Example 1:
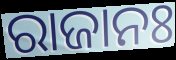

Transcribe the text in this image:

ରାଜାନଃ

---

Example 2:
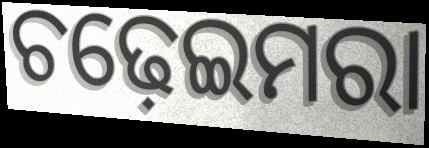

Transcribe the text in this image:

ଚଢ଼େଇମରା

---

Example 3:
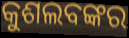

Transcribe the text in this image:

କୁଶଲବଙ୍କର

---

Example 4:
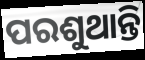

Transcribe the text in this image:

ପରଶୁଥାନ୍ତି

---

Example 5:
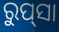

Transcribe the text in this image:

ରୁପ୍‍ସା